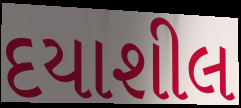
દયાશીલ